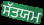
ਸੱਤਯਮ